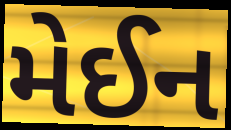
મેઈન